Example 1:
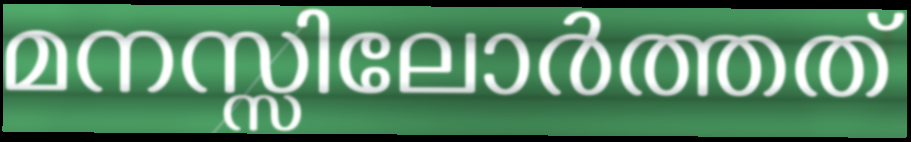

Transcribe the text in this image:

മനസ്സിലോർത്തത്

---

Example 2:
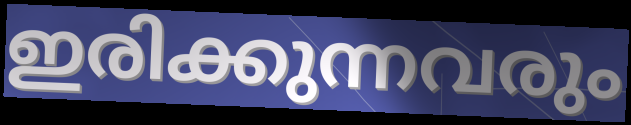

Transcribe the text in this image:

ഇരിക്കുന്നവരും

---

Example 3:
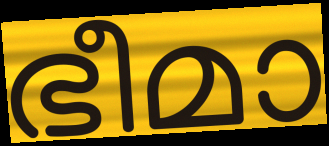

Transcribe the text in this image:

ഭീമാ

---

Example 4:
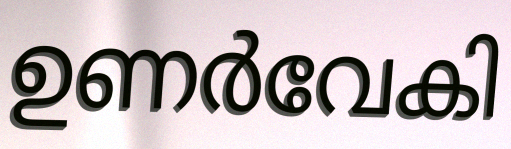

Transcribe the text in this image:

ഉണർവേകി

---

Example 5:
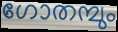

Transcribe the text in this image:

ഗോതമ്പും